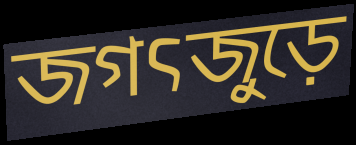
জগৎজুড়ে